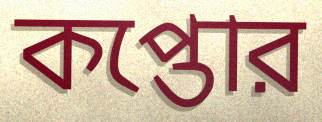
কপ্তোর